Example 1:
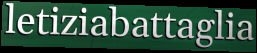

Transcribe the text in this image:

letiziabattaglia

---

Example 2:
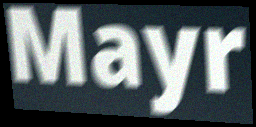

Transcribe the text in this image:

Mayr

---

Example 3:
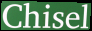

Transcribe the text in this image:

Chisel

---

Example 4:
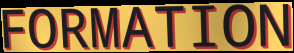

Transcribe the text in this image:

FORMATION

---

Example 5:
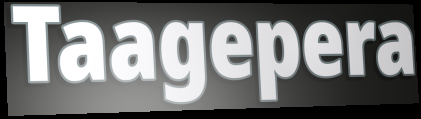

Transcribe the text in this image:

Taagepera